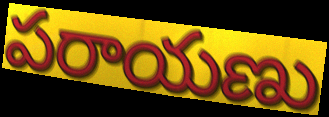
పరాయణు